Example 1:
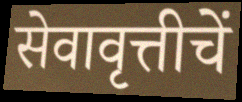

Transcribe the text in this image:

सेवावृत्तीचें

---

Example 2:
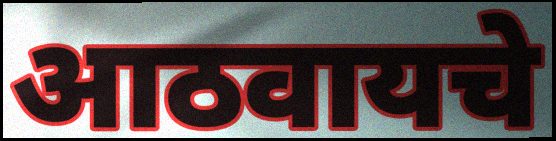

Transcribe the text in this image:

आठवायचे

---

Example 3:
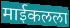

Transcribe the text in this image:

माईकलला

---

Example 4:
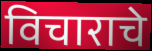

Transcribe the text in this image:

विचाराचे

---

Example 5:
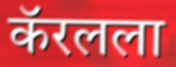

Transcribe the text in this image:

कॅरलला